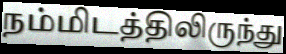
நம்மிடத்திலிருந்து